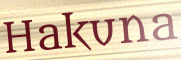
Hakuna